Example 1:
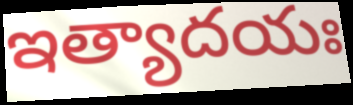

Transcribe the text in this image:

ఇత్యాదయః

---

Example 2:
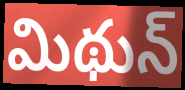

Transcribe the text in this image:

మిథున్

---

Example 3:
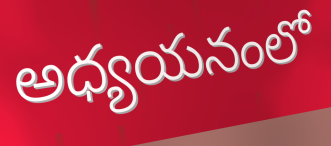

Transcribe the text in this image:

అధ్యయనంలో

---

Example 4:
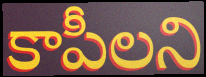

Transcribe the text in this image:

కాపీలని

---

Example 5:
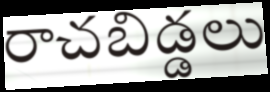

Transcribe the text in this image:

రాచబిడ్డలు